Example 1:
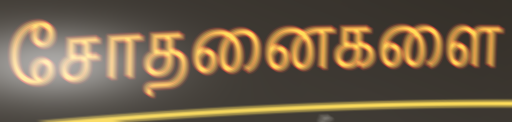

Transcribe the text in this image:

சோதனைகளை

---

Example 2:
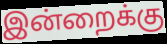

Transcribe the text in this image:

இன்றைக்கு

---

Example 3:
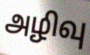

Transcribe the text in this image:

அழிவு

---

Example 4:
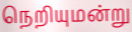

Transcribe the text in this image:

நெறியுமன்று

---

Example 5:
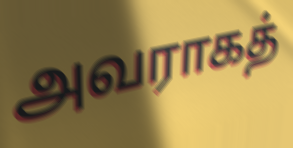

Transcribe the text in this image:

அவராகத்